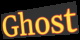
Ghost